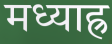
मध्याह्र